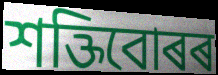
শক্তিবোৰৰ